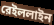
রেইললাইন